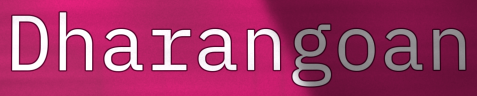
Dharangoan